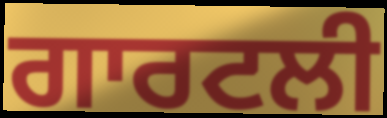
ਗਾਰਟਲੀ